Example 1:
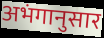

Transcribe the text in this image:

अभंगानुसार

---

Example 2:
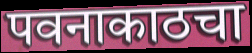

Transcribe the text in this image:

पवनाकाठचा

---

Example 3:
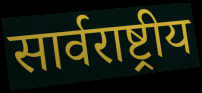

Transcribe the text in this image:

सार्वराष्ट्रीय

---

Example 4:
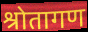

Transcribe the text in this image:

श्रोतागण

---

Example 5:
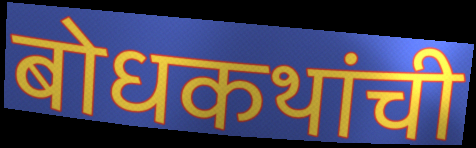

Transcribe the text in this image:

बोधकथांची